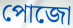
পোজো